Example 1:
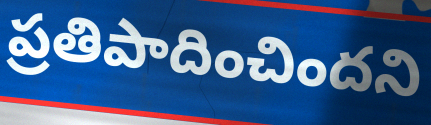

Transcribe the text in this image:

ప్రతిపాదించిందని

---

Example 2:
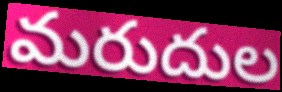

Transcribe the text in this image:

మరుదుల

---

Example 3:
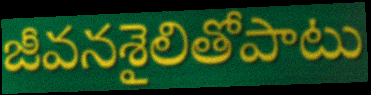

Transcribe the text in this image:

జీవనశైలితోపాటు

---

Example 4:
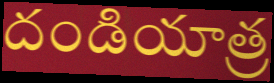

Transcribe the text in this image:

దండియాత్ర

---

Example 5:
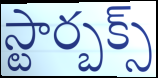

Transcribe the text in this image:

స్టార్బక్స్